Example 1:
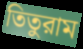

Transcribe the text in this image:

তিতুরাম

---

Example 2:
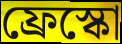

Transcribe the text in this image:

ফ্রেস্কো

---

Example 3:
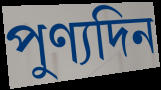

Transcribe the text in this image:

পুণ্যদিন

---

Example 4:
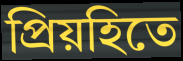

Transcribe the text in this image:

প্রিয়হিতে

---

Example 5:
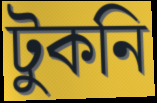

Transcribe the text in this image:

টুকনি